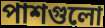
পাশগুলো